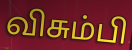
விசும்பி